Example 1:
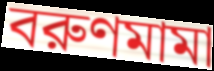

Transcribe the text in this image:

বরুণমামা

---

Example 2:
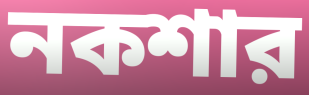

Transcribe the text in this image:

নকশার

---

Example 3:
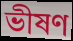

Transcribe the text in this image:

ভীষণ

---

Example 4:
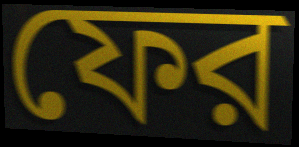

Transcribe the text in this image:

ফের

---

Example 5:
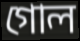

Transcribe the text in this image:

গোল